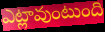
ఎట్లావుంటుంది